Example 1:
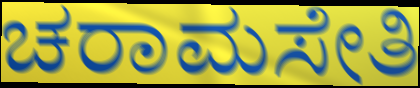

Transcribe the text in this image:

ಚರಾಮಸೇತಿ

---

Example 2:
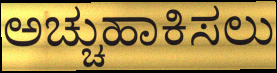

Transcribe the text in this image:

ಅಚ್ಚುಹಾಕಿಸಲು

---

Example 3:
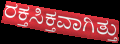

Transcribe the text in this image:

ರಕ್ತಸಿಕ್ತವಾಗಿತ್ತು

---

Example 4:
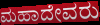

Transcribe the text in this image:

ಮಹಾದೇವರು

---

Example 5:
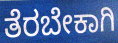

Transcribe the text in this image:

ತೆರಬೇಕಾಗಿ